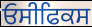
ਓਸੀਫਿਕਸ